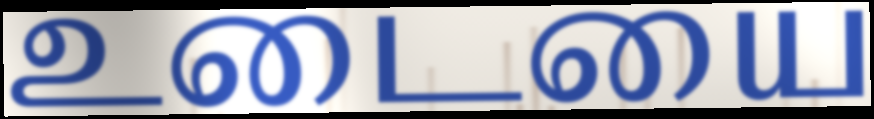
உடையை